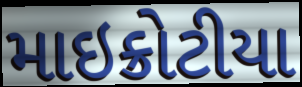
માઇક્રોટીયા